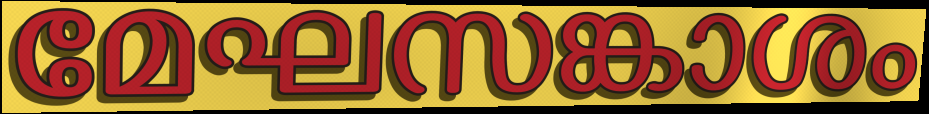
മേഘസങ്കാശം